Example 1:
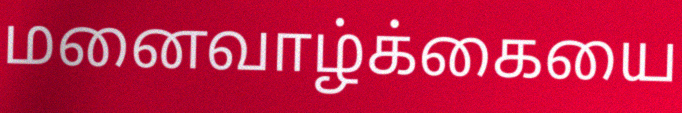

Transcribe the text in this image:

மனைவாழ்க்கையை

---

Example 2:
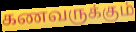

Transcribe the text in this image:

கணவருக்கும்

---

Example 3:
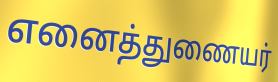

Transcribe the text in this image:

எனைத்துணையர்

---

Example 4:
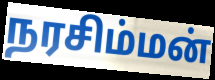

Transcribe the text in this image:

நரசிம்மன்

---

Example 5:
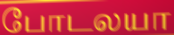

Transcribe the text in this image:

போடலயா